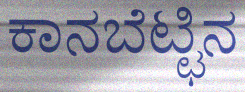
ಕಾನಬೆಟ್ಟಿನ